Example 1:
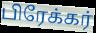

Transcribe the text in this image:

பிரேக்கர்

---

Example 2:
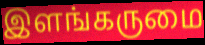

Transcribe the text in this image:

இளங்கருமை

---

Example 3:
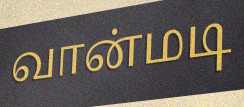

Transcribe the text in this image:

வான்மடி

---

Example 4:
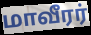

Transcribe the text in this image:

மாவீரர்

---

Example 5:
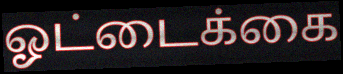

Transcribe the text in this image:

ஓட்டைக்கை